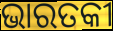
ଭାରତକୀ